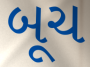
બૂચ